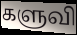
களுவி